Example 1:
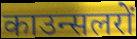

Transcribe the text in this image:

काउन्सलरों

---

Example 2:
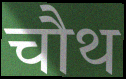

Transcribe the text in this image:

चौथ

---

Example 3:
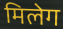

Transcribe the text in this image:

मिलेग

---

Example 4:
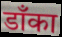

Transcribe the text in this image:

डाँका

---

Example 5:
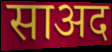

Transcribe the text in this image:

साअद